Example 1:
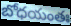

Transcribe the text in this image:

బోధయంతః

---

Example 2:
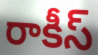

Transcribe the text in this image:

రాకీస్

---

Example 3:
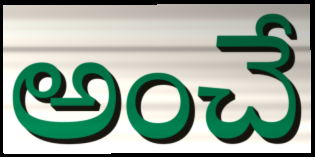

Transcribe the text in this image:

అంచే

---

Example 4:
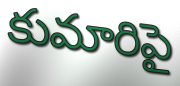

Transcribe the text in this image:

కుమారిపై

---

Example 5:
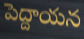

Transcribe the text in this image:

పెద్దాయన